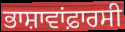
ਭਾਸ਼ਾਵਾਂਫ਼ਾਰਸੀ